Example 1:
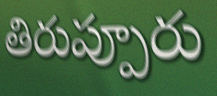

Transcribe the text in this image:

తిరుప్పూరు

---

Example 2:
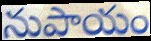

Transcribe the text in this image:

నుపాయం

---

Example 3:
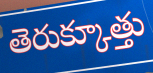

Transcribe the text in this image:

తెరుక్కూత్తు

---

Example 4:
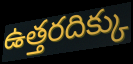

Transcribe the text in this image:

ఉత్తరదిక్కు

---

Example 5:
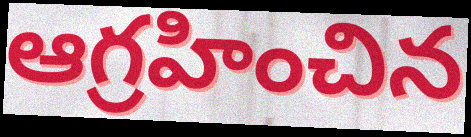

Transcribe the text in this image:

ఆగ్రహించిన